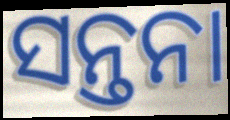
ସନ୍ତନା